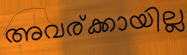
അവര്ക്കായില്ല